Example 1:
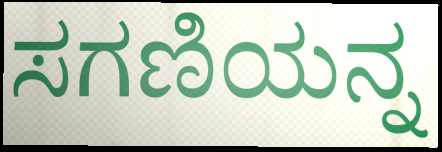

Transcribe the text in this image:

ಸಗಣಿಯನ್ನ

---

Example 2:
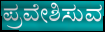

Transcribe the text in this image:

ಪ್ರವೇಶಿಸುವ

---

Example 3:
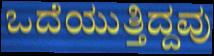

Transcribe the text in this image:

ಒದೆಯುತ್ತಿದ್ದವು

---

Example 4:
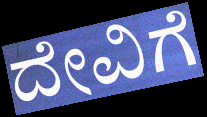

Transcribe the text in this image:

ದೇವಿಗೆ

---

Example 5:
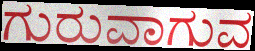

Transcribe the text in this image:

ಗುರುವಾಗುವ